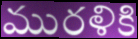
మురళికి